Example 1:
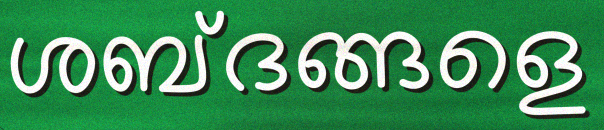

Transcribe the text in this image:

ശബ്ദങ്ങളെ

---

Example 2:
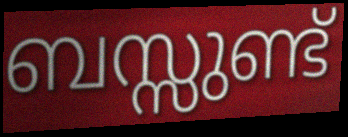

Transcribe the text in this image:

ബസ്സുണ്ട്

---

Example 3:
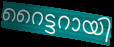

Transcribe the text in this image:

റൈട്ടറായി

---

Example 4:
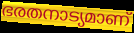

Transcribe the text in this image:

ഭരതനാട്യമാണ്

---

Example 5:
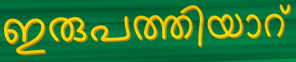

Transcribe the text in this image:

ഇരുപത്തിയാറ്